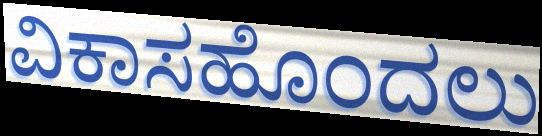
ವಿಕಾಸಹೊಂದಲು